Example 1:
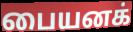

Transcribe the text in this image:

பையனக்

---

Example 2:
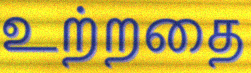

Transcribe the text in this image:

உற்றதை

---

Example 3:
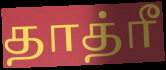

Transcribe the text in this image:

தாத்ரீ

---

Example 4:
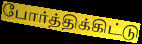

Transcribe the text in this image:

போர்த்திக்கிட்டு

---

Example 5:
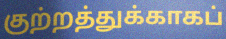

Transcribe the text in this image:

குற்றத்துக்காகப்